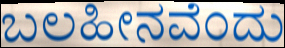
ಬಲಹೀನವೆಂದು